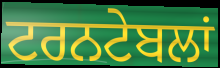
ਟਰਨਟੇਬਲਾਂ